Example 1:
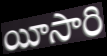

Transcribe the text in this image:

యీసారి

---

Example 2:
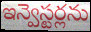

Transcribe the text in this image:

ఇన్వెస్టర్లను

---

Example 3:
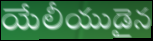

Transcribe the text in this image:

యేలీయుడైన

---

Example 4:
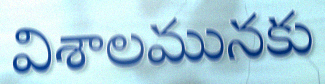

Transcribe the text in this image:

విశాలమునకు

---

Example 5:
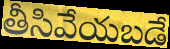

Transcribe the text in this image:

తీసివేయబడే